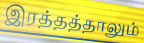
இரத்தத்தாலும்